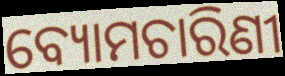
ବ୍ୟୋମଚାରିଣୀ